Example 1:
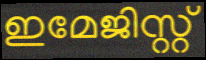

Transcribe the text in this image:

ഇമേജിസ്റ്റ്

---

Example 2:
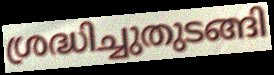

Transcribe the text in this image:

ശ്രദ്ധിച്ചുതുടങ്ങി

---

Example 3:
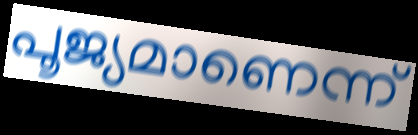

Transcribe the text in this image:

പൂജ്യമാണെന്ന്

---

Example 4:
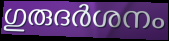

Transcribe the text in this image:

ഗുരുദർശനം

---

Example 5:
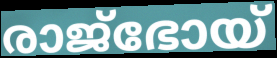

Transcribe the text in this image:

രാജ്ഭോയ്